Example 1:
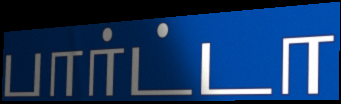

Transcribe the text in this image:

பார்ட்டா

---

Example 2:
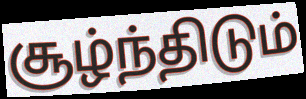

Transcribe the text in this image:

சூழ்ந்திடும்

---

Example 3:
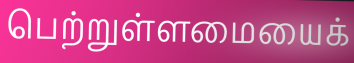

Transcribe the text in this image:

பெற்றுள்ளமையைக்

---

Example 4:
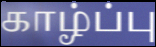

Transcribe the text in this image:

காழ்ப்பு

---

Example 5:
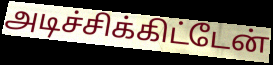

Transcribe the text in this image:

அடிச்சிக்கிட்டேன்